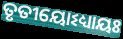
ତୃତୀୟୋଽଧ୍ୟାୟଃ